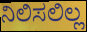
ನಿಲಿಸಲಿಲ್ಲ